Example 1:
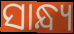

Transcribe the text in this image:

ସାନ୍ଧ୍ୟ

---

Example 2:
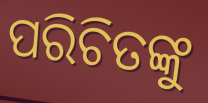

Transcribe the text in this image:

ପରିଚିତଙ୍କୁ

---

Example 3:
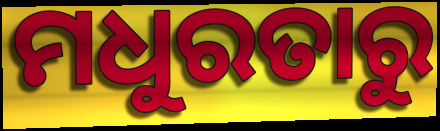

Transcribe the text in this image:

ମଧୁରତାରୁ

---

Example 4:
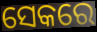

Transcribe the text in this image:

ସେକରେ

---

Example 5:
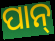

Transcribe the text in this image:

ପାନ୍